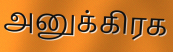
அனுக்கிரக